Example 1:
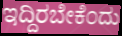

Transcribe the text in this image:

ಇದ್ದಿರಬೇಕೆಂದು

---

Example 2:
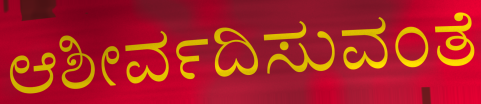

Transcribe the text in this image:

ಆಶೀರ್ವದಿಸುವಂತೆ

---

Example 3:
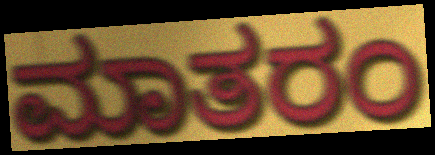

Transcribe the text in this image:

ಮಾತರಂ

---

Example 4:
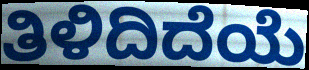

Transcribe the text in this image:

ತಿಳಿದಿದೆಯೆ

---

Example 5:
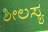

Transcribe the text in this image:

ಶೀಲಸ್ಯ